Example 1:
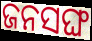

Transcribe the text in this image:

ଜନସଙ୍ଘ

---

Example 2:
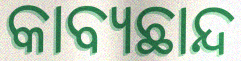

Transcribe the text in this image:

କାବ୍ୟଛାନ୍ଦ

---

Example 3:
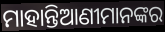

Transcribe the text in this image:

ମାହାନ୍ତିଆଣୀମାନଙ୍କର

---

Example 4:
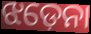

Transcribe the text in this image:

ଝଡ଼େନା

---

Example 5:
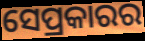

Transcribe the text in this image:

ସେପ୍ରକାରର